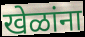
खेळांना